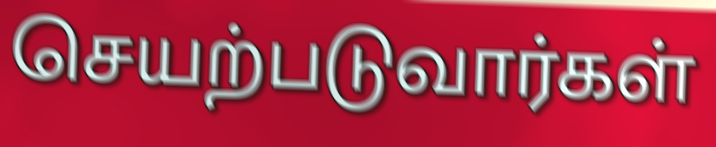
செயற்படுவார்கள்